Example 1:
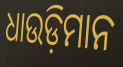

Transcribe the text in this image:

ଧାଉଡ଼ିମାନ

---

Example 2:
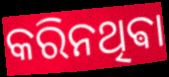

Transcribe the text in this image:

କରିନଥିଵା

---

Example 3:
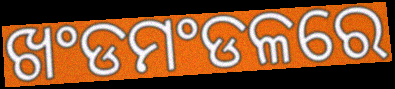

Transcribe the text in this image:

ଖଂଡମଂଡଳରେ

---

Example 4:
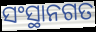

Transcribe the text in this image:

ସଂସ୍ଥାନଗତ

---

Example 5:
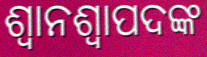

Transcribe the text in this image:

ଶ୍ୱାନଶ୍ୱାପଦଙ୍କ